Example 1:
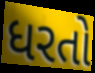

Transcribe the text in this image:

ધરતો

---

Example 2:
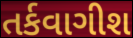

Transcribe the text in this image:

તર્કવાગીશ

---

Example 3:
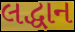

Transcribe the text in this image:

લદ્ધાન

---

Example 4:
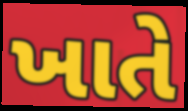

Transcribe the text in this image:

ખાતે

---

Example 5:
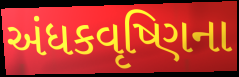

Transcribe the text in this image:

અંધકવૃષ્ણિના